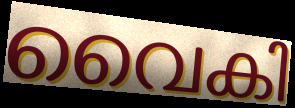
വൈകി